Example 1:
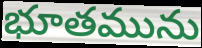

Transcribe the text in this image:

భూతమును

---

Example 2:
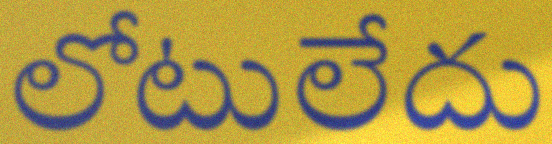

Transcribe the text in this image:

లోటులేదు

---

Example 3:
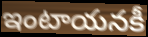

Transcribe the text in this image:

ఇంటాయనకీ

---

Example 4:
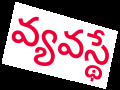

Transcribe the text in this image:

వ్యవస్థే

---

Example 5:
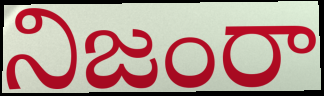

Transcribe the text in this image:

నిజంరా